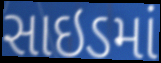
સાઇડમાં